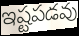
ఇష్టపడవు